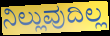
ನಿಲ್ಲುವುದಿಲ್ಲ